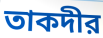
তাকদীর